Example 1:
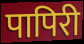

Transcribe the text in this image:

पापिरी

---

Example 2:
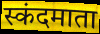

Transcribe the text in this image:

स्‍कंदमाता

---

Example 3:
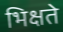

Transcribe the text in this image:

भिक्षते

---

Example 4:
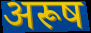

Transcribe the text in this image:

अरूष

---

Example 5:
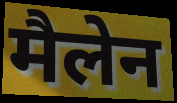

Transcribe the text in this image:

मैलेन